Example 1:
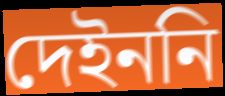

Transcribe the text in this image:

দেইননি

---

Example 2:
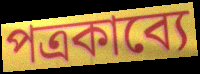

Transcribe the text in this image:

পত্রকাব্যে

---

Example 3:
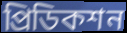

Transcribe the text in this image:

প্রিডিকশন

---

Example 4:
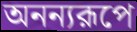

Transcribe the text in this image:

অনন্যরূপে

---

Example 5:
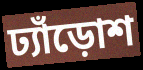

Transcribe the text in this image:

ঢ্যাঁড়োশ